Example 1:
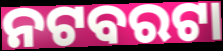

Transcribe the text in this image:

ନଟବରଟା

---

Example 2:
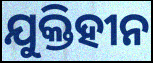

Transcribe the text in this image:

ଯୁକ୍ତିହୀନ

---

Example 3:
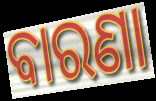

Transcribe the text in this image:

ବାରଣା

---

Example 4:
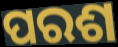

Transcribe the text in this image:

ପରଶ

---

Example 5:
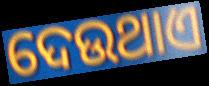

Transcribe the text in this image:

ଦେଉଥାଏ